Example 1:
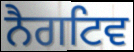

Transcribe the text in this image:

ਨੈਗਟਿਵ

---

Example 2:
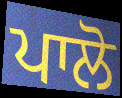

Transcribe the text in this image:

ਪਾਲੋ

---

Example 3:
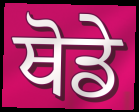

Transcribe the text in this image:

ਥੋਡੇ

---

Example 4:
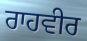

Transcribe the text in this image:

ਰਾਹਵੀਰ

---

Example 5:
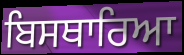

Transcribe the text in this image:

ਬਿਸਥਾਰਿਆ